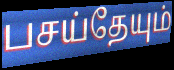
பசய்தேயும்